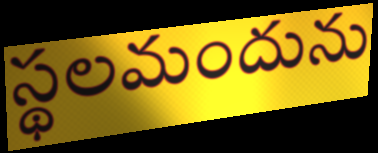
స్థలమందును